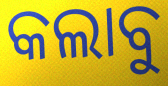
କଲାବୁ